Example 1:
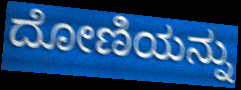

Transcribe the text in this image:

ದೋಣಿಯನ್ನು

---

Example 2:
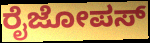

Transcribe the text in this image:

ರೈಜೋಪಸ್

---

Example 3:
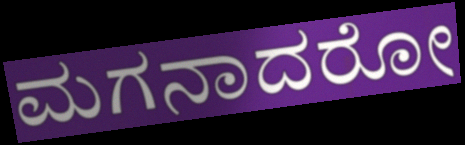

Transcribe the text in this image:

ಮಗನಾದರೋ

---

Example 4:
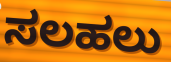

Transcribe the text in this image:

ಸಲಹಲು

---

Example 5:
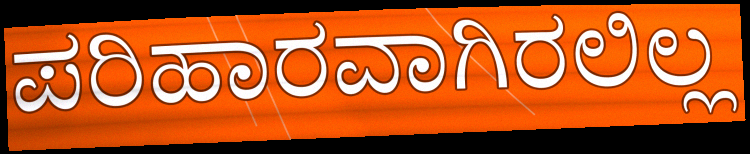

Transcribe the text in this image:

ಪರಿಹಾರವಾಗಿರಲಿಲ್ಲ